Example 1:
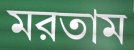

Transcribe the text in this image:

মরতাম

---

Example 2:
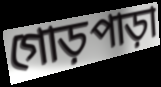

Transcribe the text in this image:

গোড়পাড়া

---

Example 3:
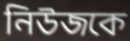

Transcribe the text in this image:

নিউজকে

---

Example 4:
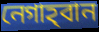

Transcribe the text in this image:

নেগাহ্‌বান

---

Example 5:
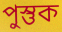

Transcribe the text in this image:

পুস্তুক